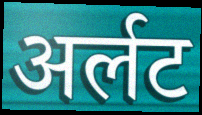
अर्लट